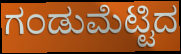
ಗಂಡುಮೆಟ್ಟಿದ